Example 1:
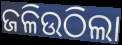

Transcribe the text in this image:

ଜଳିଉଠିଲା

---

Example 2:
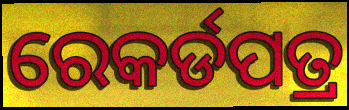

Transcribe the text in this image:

ରେକର୍ଡପତ୍ର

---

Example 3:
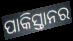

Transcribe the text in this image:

ପାକିସ୍ତାନର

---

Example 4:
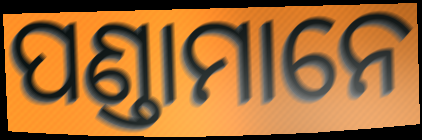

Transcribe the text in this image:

ପଣ୍ଡାମାନେ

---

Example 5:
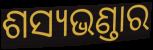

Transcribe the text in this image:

ଶସ୍ୟଭଣ୍ଡାର